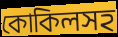
কোকিলসহ